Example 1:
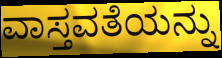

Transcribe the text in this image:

ವಾಸ್ತವತೆಯನ್ನು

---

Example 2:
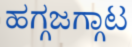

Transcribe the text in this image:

ಹಗ್ಗಜಗ್ಗಾಟ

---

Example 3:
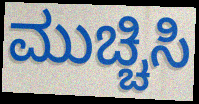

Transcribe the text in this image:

ಮುಚ್ಚಿಸಿ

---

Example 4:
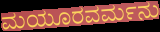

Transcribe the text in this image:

ಮಯೂರವರ್ಮನು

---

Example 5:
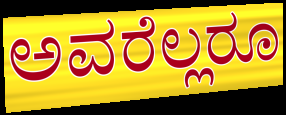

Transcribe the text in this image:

ಅವರೆಲ್ಲರೂ